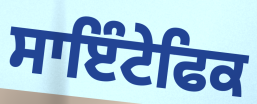
ਸਾਇੰਟੇਫਿਕ